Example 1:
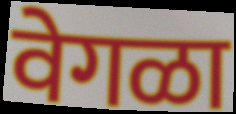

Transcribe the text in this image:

वेगळा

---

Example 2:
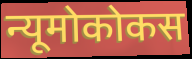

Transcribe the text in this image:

न्यूमोकोकस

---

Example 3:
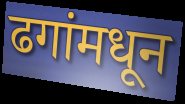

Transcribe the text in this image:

ढगांमधून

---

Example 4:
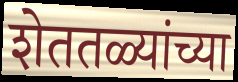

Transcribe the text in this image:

शेततळ्यांच्या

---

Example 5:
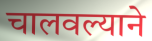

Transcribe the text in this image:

चालवल्याने